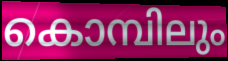
കൊമ്പിലും